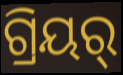
ଗ୍ରିୟର୍